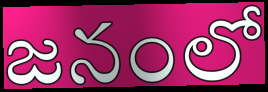
జనంలో